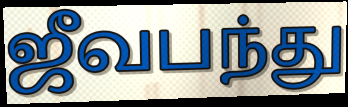
ஜீவபந்து